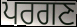
ਪਰਗਣ